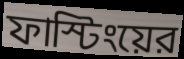
ফাস্টিংয়ের